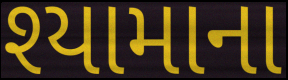
શ્યામાના